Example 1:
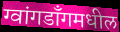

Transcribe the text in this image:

ग्वांगडाँगमधील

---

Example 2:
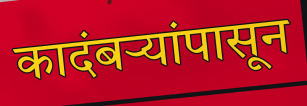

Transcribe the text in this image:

कादंबऱ्यांपासून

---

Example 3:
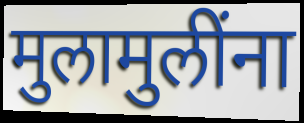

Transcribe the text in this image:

मुलामुलींना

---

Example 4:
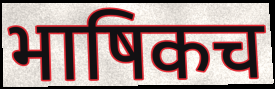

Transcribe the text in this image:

भाषिकच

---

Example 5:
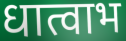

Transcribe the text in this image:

धात्वाभ